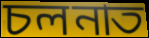
চলনাত